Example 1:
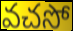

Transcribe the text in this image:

వచసో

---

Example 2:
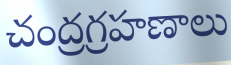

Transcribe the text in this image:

చంద్రగ్రహణాలు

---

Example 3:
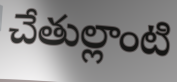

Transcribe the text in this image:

చేతుల్లాంటి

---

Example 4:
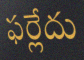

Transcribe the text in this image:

ఫర్లేదు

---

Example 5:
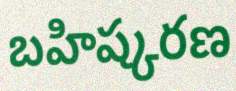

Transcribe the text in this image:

బహిష్కరణ